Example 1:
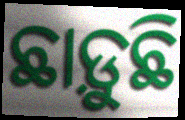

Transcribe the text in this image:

ଛାଡ଼ୁଛି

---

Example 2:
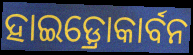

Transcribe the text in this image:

ହାଇଡ଼୍ରୋକାର୍ବନ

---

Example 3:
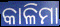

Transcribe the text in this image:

କାଳିମା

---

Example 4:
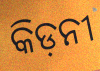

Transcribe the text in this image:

କିଡ଼ନୀ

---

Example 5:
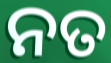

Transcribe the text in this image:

ନତ